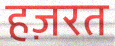
ह़ज़रत